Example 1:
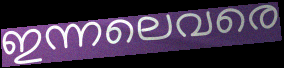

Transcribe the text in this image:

ഇന്നലെവരെ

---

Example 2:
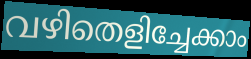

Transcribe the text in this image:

വഴിതെളിച്ചേക്കാം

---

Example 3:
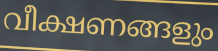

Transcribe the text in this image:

വീക്ഷണങ്ങളും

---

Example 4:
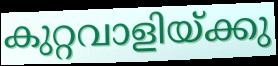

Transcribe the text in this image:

കുറ്റവാളിയ്ക്കു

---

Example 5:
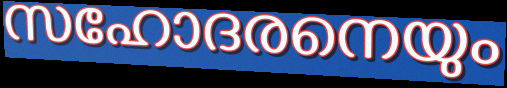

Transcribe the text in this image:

സഹോദരനെയും